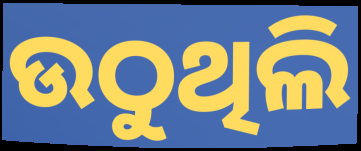
ଉଠୁଥିଲି